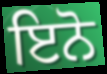
ਇਨੋ